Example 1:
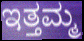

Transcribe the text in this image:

ಇತ್ತಮ್ಮ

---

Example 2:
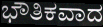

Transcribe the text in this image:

ಭೌತಿಕವಾದ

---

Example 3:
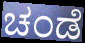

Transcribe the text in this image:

ಚಂಡೆ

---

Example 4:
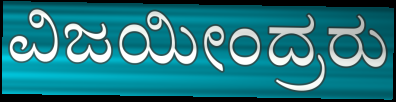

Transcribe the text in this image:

ವಿಜಯೀಂದ್ರರು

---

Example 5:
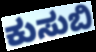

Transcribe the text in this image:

ಕುಸುಬಿ